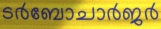
ടർബോചാർജർ